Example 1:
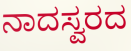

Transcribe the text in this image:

ನಾದಸ್ವರದ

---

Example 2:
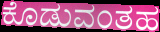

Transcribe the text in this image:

ಕೊಡುವಂತಹ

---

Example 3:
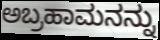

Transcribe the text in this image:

ಅಬ್ರಹಾಮನನ್ನು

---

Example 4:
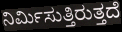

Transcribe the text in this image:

ನಿರ್ಮಿಸುತ್ತಿರುತ್ತದೆ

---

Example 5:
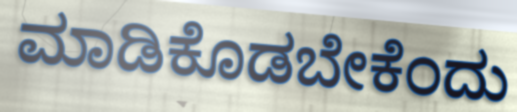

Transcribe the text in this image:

ಮಾಡಿಕೊಡಬೇಕೆಂದು